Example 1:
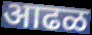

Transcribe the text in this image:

आढळ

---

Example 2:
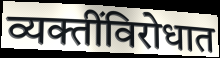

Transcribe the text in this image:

व्यक्तींविरोधात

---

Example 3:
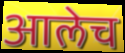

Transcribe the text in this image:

आलेच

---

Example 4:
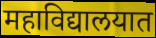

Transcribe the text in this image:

महाविद्यालयात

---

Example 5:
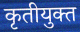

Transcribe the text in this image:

कृतीयुक्त